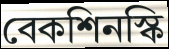
বেকশিনস্কি